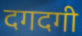
दगदगी